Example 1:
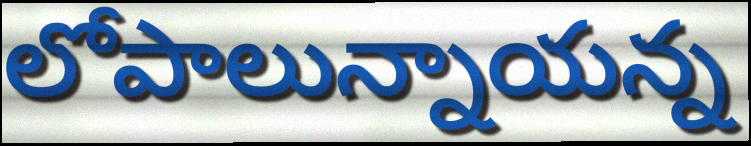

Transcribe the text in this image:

లోపాలున్నాయన్న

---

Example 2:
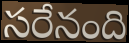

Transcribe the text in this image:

సరేనంది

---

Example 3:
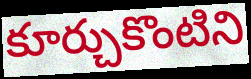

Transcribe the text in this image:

కూర్చుకొంటిని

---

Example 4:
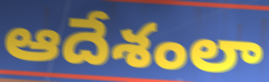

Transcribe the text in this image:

ఆదేశంలా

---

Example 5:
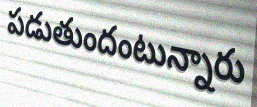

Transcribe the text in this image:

పడుతుందంటున్నారు